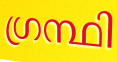
ഗ്രന്ഥി